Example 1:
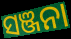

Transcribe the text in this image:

ସଞ୍ଜନା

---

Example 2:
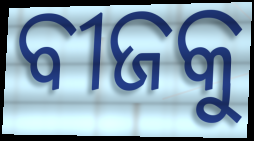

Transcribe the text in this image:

ବୀଜକୁ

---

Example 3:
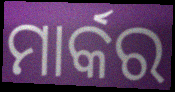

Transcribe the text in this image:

ମାର୍କର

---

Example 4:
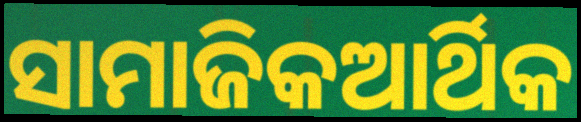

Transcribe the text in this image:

ସାମାଜିକଆର୍ଥିକ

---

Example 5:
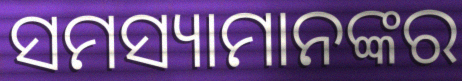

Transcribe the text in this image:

ସମସ୍ୟାମାନଙ୍କର